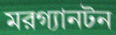
মরগ্যানটন